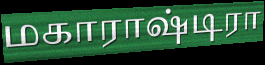
மகாராஷ்டிரா